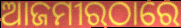
ଆଜମୀରଠାରେ